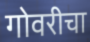
गोवरीचा